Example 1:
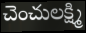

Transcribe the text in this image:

చెంచులక్ష్మి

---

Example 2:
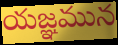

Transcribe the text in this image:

యజ్ఞమున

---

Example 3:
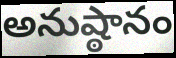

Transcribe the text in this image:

అనుష్ఠానం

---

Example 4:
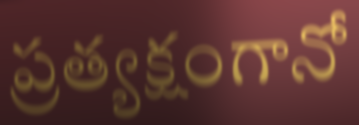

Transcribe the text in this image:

ప్రత్యక్షంగానో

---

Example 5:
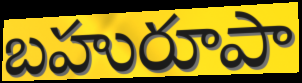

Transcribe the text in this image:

బహురూపా